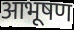
आभूषण